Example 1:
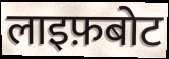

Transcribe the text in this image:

लाइफ़बोट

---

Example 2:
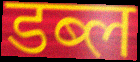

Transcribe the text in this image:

डब्ल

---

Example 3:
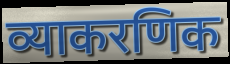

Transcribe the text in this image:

व्याकरणिक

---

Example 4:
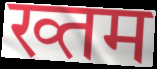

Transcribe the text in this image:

ख्तम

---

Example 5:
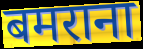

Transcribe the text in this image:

बमराना